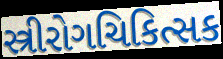
સ્ત્રીરોગચિકિત્સક